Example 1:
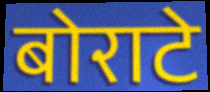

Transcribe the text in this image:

बोराटे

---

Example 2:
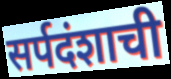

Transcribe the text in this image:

सर्पदंशाची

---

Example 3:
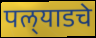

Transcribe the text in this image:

पल्याडचे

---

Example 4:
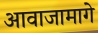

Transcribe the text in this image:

आवाजामागे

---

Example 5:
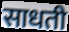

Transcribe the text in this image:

साधती